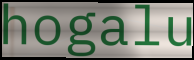
hogalu